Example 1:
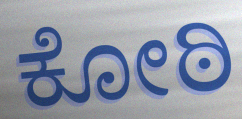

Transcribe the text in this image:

ಕೋಠಿ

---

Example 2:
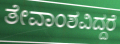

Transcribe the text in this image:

ತೇವಾಂಶವಿದ್ದರೆ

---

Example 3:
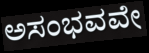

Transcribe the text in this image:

ಅಸಂಭವವೇ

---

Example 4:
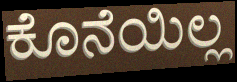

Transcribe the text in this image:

ಕೊನೆಯಿಲ್ಲ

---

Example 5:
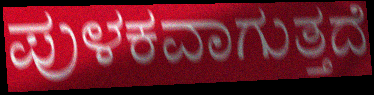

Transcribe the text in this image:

ಪುಳಕವಾಗುತ್ತದೆ